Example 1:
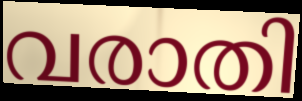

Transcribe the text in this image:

വരാതി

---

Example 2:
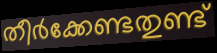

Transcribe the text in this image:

തീർക്കേണ്ടതുണ്ട്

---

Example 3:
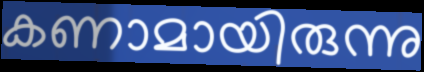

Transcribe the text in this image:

കണാമായിരുന്നു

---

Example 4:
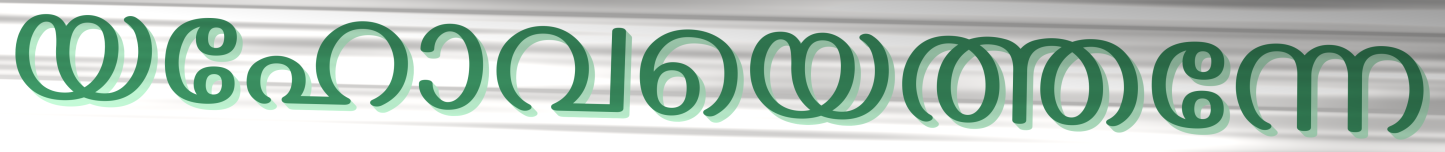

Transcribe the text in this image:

യഹോവയെത്തന്നേ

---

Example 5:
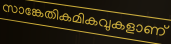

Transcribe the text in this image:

സാങ്കേതികമികവുകളാണ്